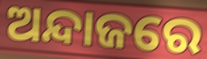
ଅନ୍ଦାଜରେ